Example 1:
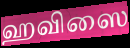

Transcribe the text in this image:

ஹவிஸை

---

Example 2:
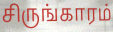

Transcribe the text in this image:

சிருங்காரம்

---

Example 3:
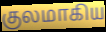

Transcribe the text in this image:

குலமாகிய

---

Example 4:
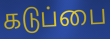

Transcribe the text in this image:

கடுப்பை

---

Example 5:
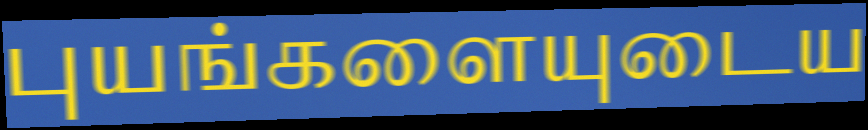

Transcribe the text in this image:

புயங்களையுடைய